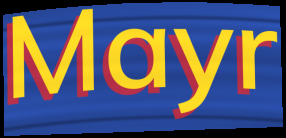
Mayr